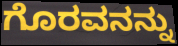
ಗೊರವನನ್ನು